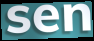
sen